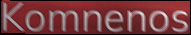
Komnenos